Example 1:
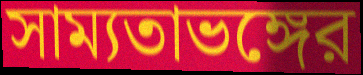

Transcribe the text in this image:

সাম্যতাভঙ্গের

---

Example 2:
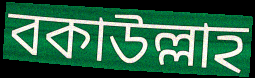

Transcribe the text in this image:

বকাউল্লাহ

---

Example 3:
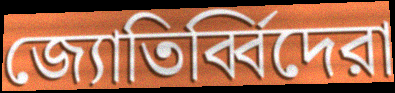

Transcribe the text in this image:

জ্যোতির্ব্বিদেরা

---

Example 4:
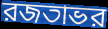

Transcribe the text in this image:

রজতাভর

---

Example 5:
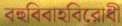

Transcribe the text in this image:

বহুবিবাহবিরোধী